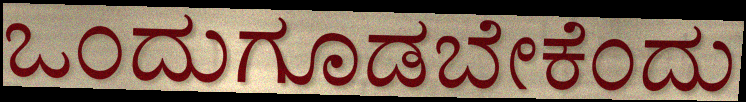
ಒಂದುಗೂಡಬೇಕೆಂದು